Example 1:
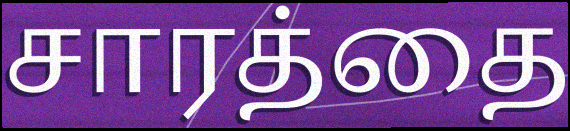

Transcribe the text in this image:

சாரத்தை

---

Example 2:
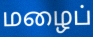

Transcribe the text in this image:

மழைப்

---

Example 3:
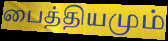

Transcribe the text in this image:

பைத்தியமும்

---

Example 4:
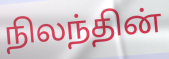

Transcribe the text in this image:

நிலந்தின்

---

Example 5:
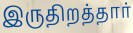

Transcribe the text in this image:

இருதிறத்தார்